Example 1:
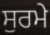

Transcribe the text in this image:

ਸੁਰਮੇ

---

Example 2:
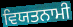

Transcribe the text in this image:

ਵਿਯਤਨਾਮੀ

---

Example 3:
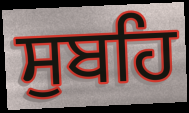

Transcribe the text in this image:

ਸੁਬਹਿ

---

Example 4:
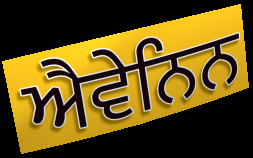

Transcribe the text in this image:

ਐਵੇਨਿਨ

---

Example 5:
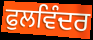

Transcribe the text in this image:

ਫੁਲਵਿੰਦਰ